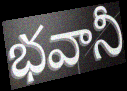
భవానీ